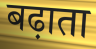
बढ़ाता